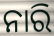
ନାରି